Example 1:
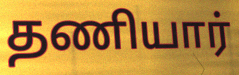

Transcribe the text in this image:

தணியார்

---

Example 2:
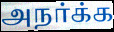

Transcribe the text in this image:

அநர்க்க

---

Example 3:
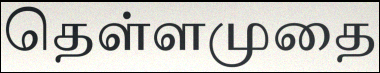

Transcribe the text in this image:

தெள்ளமுதை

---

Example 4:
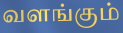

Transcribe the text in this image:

வளங்கும்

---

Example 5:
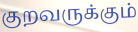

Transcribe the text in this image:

குறவருக்கும்